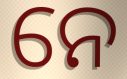
ନେ